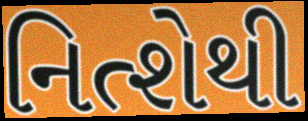
નિત્શેથી